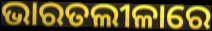
ଭାରତଲୀଳାରେ